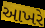
આખરે